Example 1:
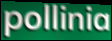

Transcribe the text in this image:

pollinia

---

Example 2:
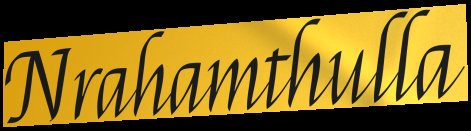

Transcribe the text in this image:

Nrahamthulla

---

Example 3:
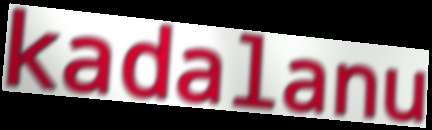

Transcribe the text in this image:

kadalanu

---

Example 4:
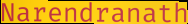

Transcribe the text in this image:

Narendranath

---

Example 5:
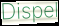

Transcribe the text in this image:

Dispel